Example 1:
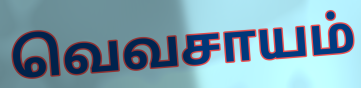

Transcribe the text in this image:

வெவசாயம்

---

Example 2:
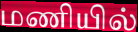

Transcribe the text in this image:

மணியில்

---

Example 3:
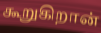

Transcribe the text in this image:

கூறுகிறான்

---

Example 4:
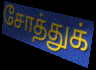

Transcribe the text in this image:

சோத்துக்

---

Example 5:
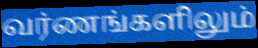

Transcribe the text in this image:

வர்ணங்களிலும்